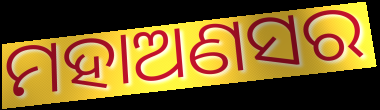
ମହାଅଣସର